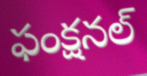
ఫంక్షనల్